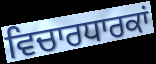
ਵਿਚਾਰਧਾਰਕਾਂ